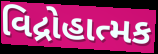
વિદ્રોહાત્મક